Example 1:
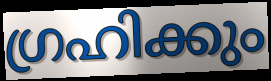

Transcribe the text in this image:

ഗ്രഹിക്കും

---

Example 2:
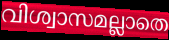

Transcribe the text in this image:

വിശ്വാസമല്ലാതെ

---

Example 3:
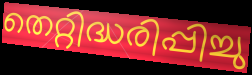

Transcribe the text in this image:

തെറ്റിദ്ധരിപ്പിച്ചു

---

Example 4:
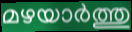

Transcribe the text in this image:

മഴയാർത്തു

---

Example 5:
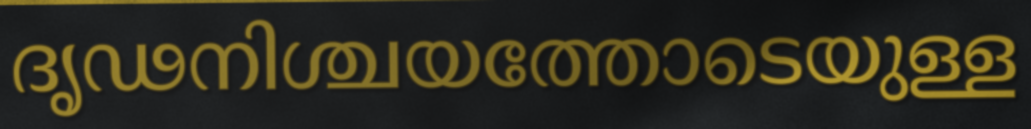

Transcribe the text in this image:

ദൃഢനിശ്ചയത്തോടെയുള്ള